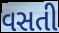
વસતી